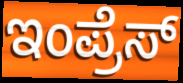
ಇಂಪ್ರೆಸ್